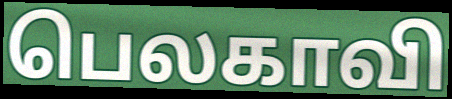
பெலகாவி